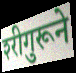
श्रीगुरूने